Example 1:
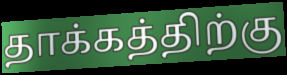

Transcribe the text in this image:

தாக்கத்திற்கு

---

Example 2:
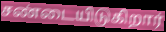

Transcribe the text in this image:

சண்டையிடுகிறார்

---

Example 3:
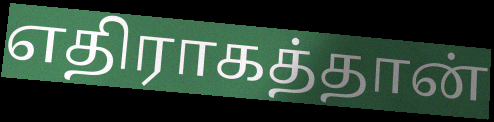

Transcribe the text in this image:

எதிராகத்தான்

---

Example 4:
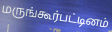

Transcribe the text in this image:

மருங்கூர்பட்டினம்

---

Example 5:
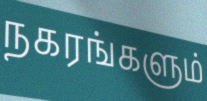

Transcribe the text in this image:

நகரங்களும்